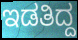
ಇಡತಿದ್ದ